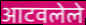
आटवलेले